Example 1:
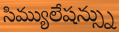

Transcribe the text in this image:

సిమ్యులేషన్స్ను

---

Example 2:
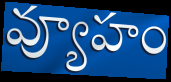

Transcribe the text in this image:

వ్యూహం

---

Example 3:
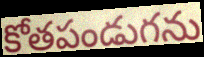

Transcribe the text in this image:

కోతపండుగను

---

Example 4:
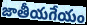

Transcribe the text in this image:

జాతీయగేయం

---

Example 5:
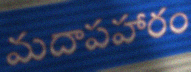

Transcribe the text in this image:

మదాపహారం